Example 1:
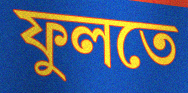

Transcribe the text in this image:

ফুলতে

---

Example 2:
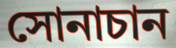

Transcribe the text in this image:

সোনাচান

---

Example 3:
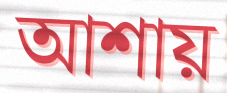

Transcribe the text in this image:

আশায়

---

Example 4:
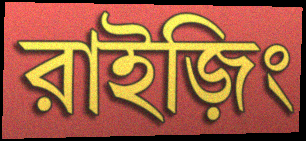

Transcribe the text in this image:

রাইজ়িং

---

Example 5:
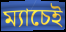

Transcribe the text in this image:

ম্যাচেই